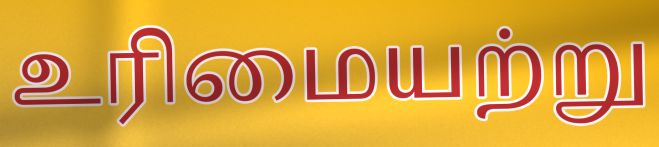
உரிமையற்று